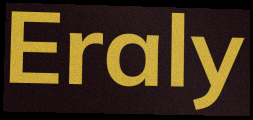
Eraly